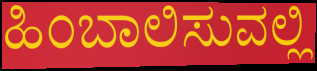
ಹಿಂಬಾಲಿಸುವಲ್ಲಿ